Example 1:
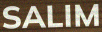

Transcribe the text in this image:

SALIM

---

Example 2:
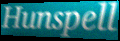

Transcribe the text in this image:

Hunspell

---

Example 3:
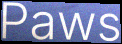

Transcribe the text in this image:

Paws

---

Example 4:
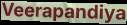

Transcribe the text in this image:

Veerapandiya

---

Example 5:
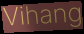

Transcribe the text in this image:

Vihang